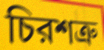
চিরশত্রু